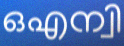
ഒഎന്വി